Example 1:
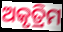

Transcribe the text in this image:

ଅକୃତ୍ରିମ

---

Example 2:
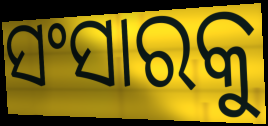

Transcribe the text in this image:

ସଂସାରକୁ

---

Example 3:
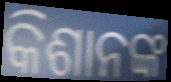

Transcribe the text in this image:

କିଶାନଙ୍କ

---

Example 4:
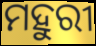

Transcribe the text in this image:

ମହୁରୀ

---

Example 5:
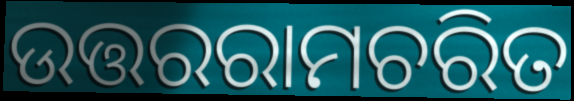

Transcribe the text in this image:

ଉତ୍ତରରାମଚରିତ